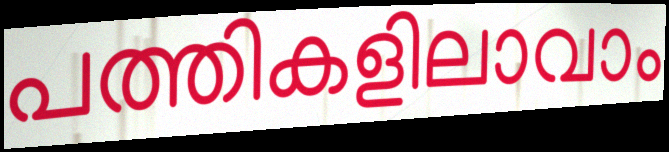
പത്തികളിലാവാം